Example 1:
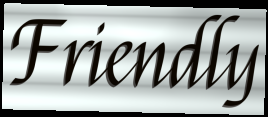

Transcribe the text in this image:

Friendly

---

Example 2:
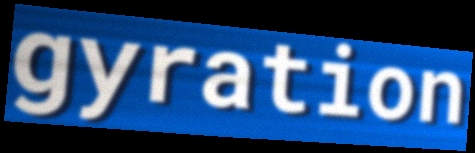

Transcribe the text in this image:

gyration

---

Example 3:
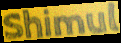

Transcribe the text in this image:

Shimul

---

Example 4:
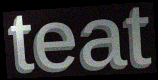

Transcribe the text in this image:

teat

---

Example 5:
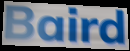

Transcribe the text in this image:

Baird